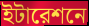
ইটারেশনে